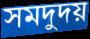
সমদুদয়